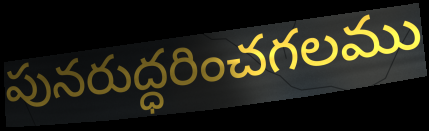
పునరుద్ధరించగలము